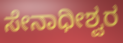
ಸೇನಾಧೀಶ್ವರ